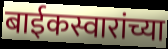
बाईकस्वारांच्या